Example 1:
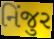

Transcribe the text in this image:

નિંજુર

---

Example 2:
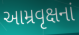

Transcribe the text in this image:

આમ્રવૃક્ષનાં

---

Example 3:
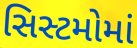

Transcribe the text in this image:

સિસ્ટમોમાં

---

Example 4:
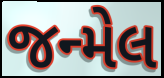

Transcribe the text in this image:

જન્મેલ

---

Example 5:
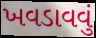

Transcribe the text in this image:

ખવડાવવું